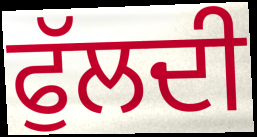
ਫੁੱਲਦੀ